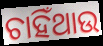
ଚାହିଁଥାଉ